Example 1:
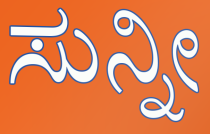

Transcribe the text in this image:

ಸುನ್ನೀ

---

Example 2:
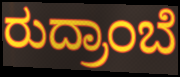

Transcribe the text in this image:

ರುದ್ರಾಂಬೆ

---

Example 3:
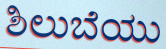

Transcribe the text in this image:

ಶಿಲುಬೆಯು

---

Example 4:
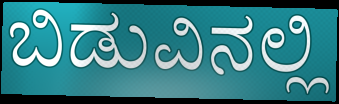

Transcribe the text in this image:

ಬಿಡುವಿನಲ್ಲಿ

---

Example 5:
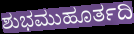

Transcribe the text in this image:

ಶುಭಮುಹೂರ್ತದಿ